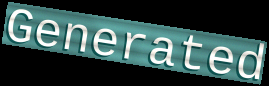
Generated